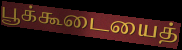
பூக்கூடையைத்